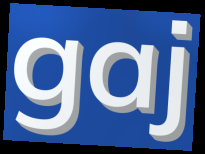
gaj